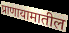
प्राणायामातील